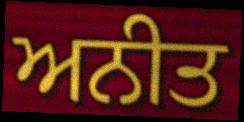
ਅਨੀਤ